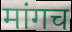
मांगच